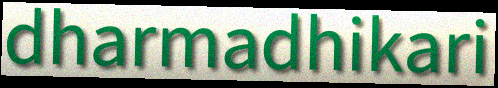
dharmadhikari